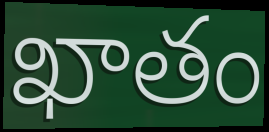
ఖాతం